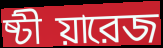
ষ্টীয়ারেজ